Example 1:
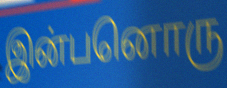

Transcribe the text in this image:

இன்பனொரு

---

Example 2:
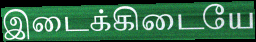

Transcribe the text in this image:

இடைக்கிடையே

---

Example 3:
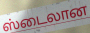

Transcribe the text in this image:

ஸ்டைலான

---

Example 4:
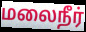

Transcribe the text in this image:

மலைநீர்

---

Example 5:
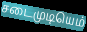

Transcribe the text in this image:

சடைமுடியெம்